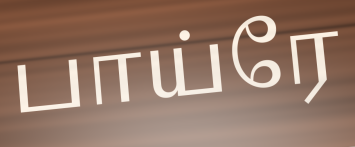
பாய்ரே